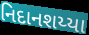
નિદાનશય્યા